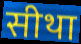
सीथा